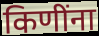
किणींना